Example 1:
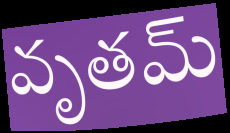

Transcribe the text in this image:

వృతమ్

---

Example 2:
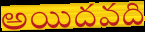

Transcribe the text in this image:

అయిదవది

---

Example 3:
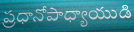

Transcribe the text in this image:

ప్రధానోపాధ్యాయుడి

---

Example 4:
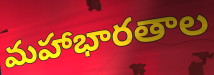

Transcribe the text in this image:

మహాభారతాల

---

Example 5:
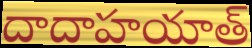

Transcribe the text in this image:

దాదాహయాత్